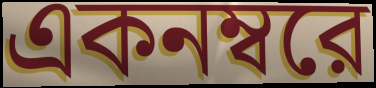
একনম্বরে